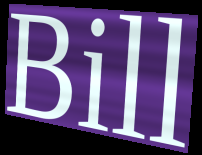
Bill